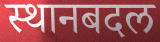
स्थानबदल